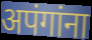
अपंगांना